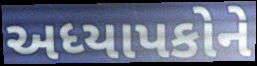
અધ્યાપકોને